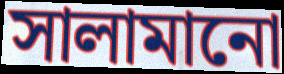
সালামানো